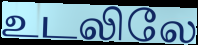
உடலிலே